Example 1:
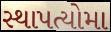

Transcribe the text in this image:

સ્થાપત્યોમા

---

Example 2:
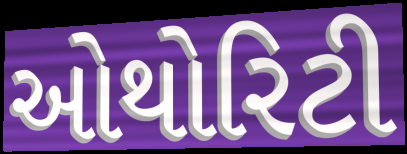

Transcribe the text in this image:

ઓથોરિટી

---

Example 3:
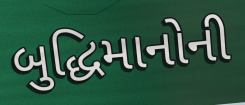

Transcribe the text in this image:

બુદ્ધિમાનોની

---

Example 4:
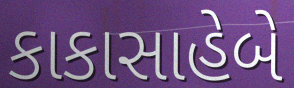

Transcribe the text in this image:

કાકાસાહેબે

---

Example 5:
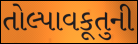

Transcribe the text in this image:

તોલ્પાવકૂતુની